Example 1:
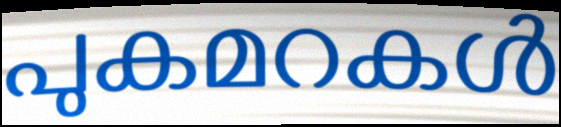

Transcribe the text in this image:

പുകമറകൾ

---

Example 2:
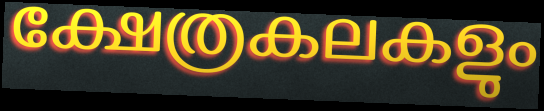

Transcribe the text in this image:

ക്ഷേത്രകലകളും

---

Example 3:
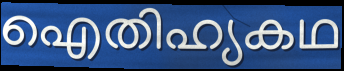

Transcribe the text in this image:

ഐതിഹ്യകഥ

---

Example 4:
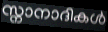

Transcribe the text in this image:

സ്നാനാദികൾ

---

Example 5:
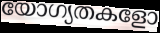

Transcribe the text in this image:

യോഗ്യതകളോ